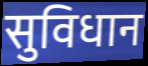
सुविधान